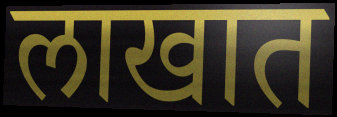
लाखात